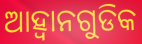
ଆହ୍ୱାନଗୁଡିକ